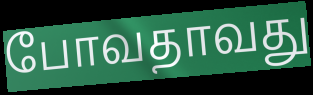
போவதாவது